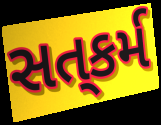
સત્‌કર્મ